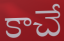
కాచే